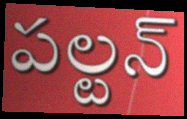
పల్టన్